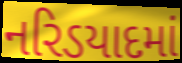
નરિડયાદમાં